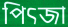
পিৎজা